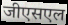
जीएसएल